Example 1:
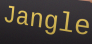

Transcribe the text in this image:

Jangle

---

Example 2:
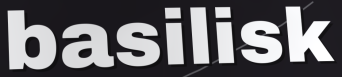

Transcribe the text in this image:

basilisk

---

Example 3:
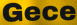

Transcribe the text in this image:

Gece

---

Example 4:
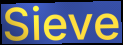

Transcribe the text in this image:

Sieve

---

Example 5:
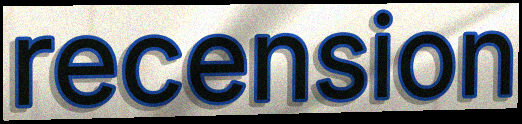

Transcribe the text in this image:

recension